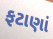
ફટાણાં